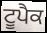
ਟੂਪੈਕ